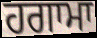
ਹਗਾਮਾ